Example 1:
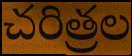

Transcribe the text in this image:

చరిత్రల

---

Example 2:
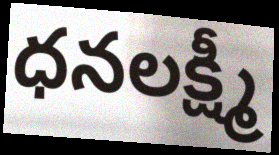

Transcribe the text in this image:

ధనలక్ష్మీ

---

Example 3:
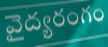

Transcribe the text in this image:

వైద్యరంగం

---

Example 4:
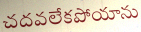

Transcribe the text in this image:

చదవలేకపోయాను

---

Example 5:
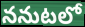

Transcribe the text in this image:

ననుటలో